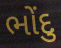
ભોંદુ